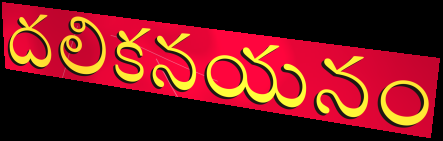
దలికనయనం